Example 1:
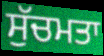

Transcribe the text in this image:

ਸੁੱਚਮਤਾ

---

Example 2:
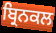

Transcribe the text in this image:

ਬ੍ਰਿਨਕਲ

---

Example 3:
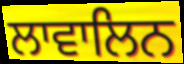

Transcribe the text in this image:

ਲਾਵਾਲਿਨ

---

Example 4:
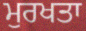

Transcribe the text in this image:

ਮੁਰਖਤਾ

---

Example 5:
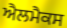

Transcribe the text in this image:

ਐਲਮੈਕਸ